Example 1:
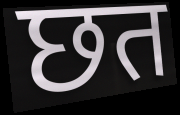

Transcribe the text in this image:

छत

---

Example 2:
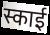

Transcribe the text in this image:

स्काई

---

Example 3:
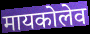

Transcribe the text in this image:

मायकोलेव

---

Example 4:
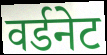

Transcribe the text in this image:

वर्डनेट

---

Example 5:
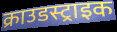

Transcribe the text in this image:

क्राउडस्ट्राइक